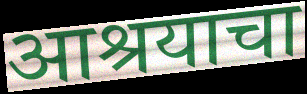
आश्रयाचा